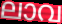
ലാവ